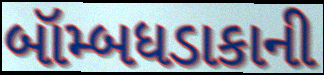
બૉમ્બધડાકાની